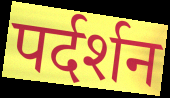
पर्दर्शन